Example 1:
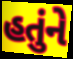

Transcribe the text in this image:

હતુંને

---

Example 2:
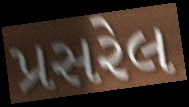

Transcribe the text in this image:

પ્રસરેલ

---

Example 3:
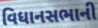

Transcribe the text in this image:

વિધાનસભાની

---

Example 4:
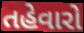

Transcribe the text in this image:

તહેવારો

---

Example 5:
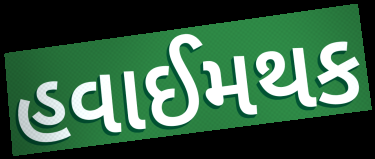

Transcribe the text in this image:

હવાઈમથક